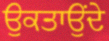
ਉਕਤਾਉਂਦੇ